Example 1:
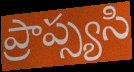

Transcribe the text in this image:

ప్రాప్స్యసి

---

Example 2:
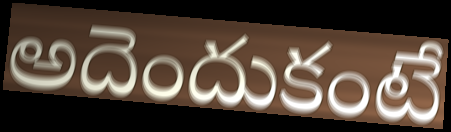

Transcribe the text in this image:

అదెందుకంటే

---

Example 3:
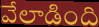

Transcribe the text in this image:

వేలాడింది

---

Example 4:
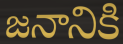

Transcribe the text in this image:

జనానికి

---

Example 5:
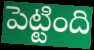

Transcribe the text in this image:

పెట్టింది